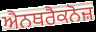
ਐਨਥਰੈਕਨੋਜ਼